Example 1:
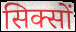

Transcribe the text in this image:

सिक्सों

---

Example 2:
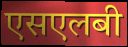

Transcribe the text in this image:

एसएलबी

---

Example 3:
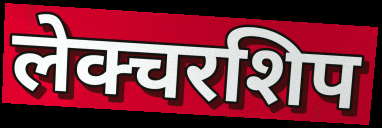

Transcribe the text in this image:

लेक्चरशिप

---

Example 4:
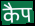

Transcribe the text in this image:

कैप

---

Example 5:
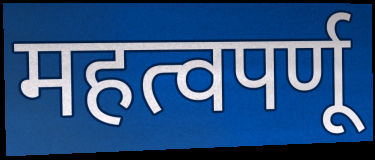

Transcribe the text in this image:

महत्‍वपर्णू